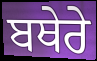
ਬਥੇਰੇ